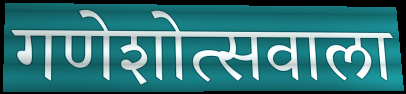
गणेशोत्सवाला